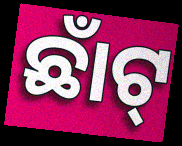
ଛାଁଟ୍